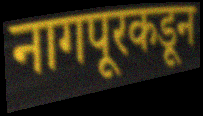
नागपूरकडून